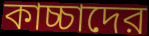
কাচ্চাদের